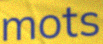
mots